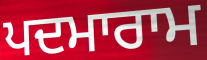
ਪਦਮਾਰਾਮ